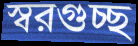
স্বরগুচ্ছ